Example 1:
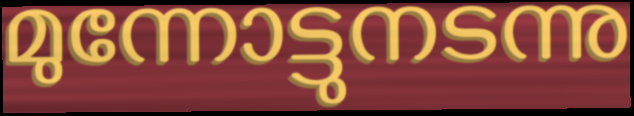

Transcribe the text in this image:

മുന്നോട്ടുനടന്നു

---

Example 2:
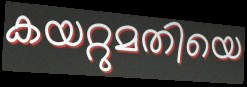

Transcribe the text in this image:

കയറ്റുമതിയെ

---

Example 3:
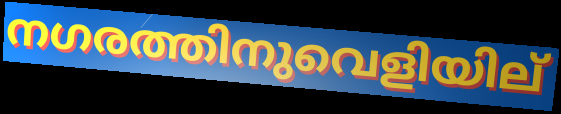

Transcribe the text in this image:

നഗരത്തിനുവെളിയില്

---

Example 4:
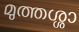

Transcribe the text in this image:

മുത്തശ്ശാ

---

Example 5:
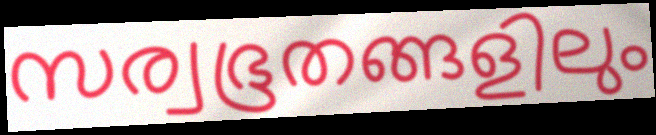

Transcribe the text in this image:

സര്വഭൂതങ്ങളിലും